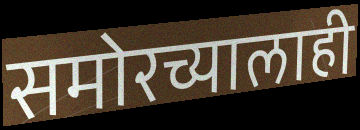
समोरच्यालाही